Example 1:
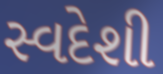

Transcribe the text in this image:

સ્વદેશી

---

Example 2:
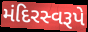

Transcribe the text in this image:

મંદિરસ્વરૂપે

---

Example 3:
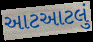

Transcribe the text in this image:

આટઆટલું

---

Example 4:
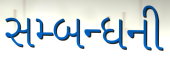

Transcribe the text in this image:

સમ્બન્ધની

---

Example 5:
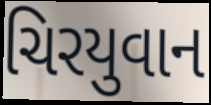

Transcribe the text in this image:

ચિરયુવાન